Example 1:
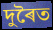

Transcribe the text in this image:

দুৰৈত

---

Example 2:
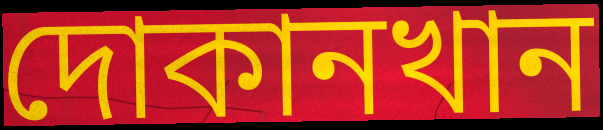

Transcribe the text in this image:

দোকানখান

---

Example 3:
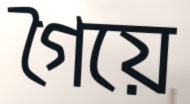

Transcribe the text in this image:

গৈয়ে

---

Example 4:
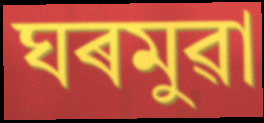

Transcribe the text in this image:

ঘৰমুৱা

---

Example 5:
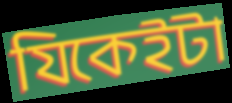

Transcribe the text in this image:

যিকেইটা